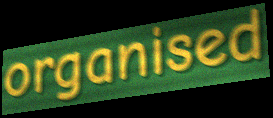
organised